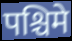
पश्चिमे